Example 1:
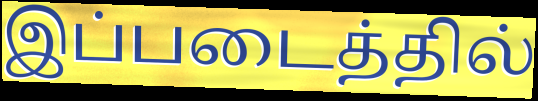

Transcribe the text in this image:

இப்படைத்தில்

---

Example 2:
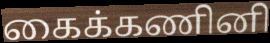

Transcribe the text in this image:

கைக்கணினி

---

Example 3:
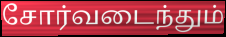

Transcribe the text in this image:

சோர்வடைந்தும்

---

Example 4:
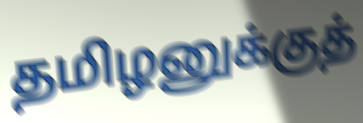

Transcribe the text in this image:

தமிழனுக்குத்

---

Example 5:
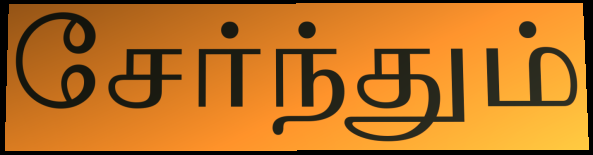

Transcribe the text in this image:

சேர்ந்தும்